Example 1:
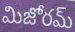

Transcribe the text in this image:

మిజోరమ్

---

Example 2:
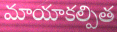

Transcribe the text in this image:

మాయాకల్పిత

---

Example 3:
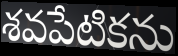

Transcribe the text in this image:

శవపేటికను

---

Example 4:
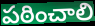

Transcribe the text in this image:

పఠించాలి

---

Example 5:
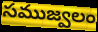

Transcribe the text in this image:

సముజ్వలం